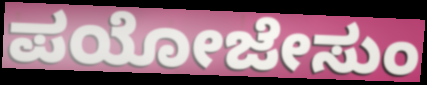
ಪಯೋಜೇಸುಂ